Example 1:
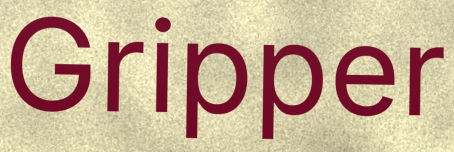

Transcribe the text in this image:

Gripper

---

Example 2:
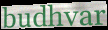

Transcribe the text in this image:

budhvar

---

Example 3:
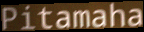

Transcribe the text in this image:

Pitamaha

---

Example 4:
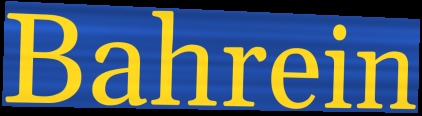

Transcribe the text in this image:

Bahrein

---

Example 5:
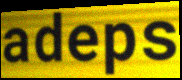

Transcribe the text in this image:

adeps